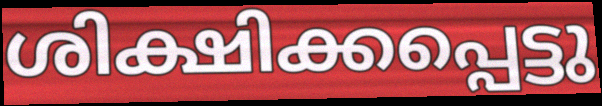
ശിക്ഷിക്കപ്പെട്ടു